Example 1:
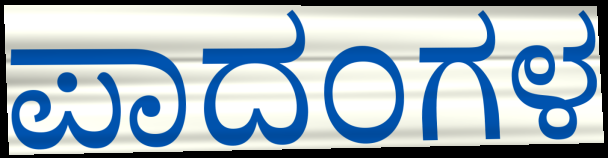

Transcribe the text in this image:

ಪಾದಂಗಳ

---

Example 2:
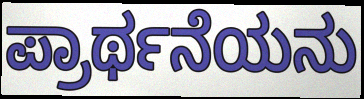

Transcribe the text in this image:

ಪ್ರಾರ್ಥನೆಯನು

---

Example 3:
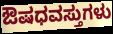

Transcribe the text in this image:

ಔಷಧವಸ್ತುಗಳು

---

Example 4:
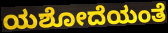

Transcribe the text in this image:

ಯಶೋದೆಯಂತೆ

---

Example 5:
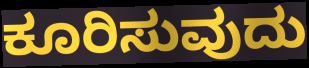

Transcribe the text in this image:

ಕೂರಿಸುವುದು